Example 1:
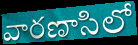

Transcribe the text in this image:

వారణాసిలో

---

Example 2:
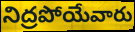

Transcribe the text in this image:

నిద్రపోయేవారు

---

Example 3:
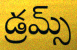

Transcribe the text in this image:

డ్రమ్స్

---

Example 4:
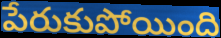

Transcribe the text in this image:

పేరుకుపోయింది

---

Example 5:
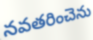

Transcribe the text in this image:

నవతరించెను